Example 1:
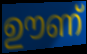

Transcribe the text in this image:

ഊണ്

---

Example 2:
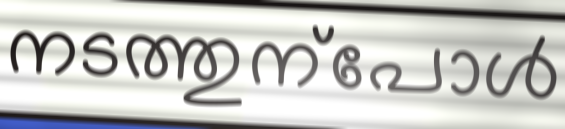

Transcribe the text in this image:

നടത്തുന്പോൾ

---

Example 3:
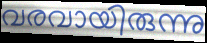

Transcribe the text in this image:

വരവായിരുന്നു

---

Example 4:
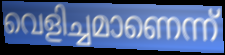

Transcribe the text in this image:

വെളിച്ചമാണെന്ന്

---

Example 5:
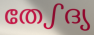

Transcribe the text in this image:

തേഽദ്യ